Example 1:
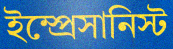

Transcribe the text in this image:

ইম্প্রেসানিস্ট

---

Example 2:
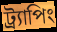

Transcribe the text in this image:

ট্র্যাপিং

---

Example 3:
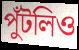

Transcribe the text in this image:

পুঁটলিও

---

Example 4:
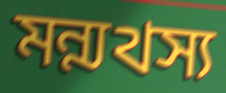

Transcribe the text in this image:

মন্মথস্য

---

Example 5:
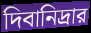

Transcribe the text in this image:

দিবানিদ্রার